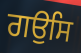
ਗਉਸਿ